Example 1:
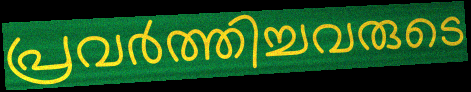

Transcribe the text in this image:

പ്രവർത്തിച്ചവരുടെ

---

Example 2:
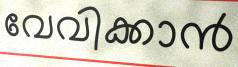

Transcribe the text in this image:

വേവിക്കാൻ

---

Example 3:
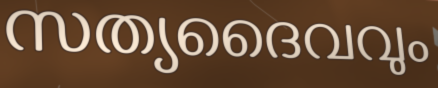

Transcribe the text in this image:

സത്യദൈവവും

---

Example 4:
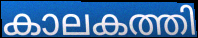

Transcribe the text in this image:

കാലകത്തി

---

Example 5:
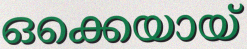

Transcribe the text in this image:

ഒക്കെയായ്